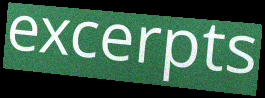
excerpts